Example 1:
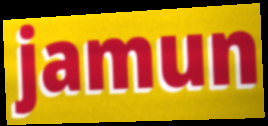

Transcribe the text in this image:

jamun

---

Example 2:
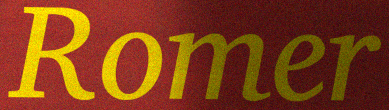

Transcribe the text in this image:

Romer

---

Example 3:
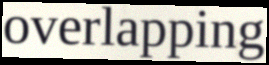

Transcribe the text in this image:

overlapping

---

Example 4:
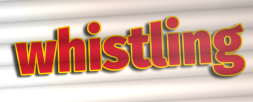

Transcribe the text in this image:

whistling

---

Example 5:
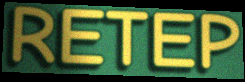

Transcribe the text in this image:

RETEP